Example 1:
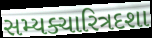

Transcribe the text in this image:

સમ્યક્ચારિત્રદશા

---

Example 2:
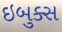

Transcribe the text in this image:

ઇબુક્સ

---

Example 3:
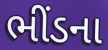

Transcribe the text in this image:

ભીંડના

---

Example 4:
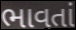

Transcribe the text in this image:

ભાવતાં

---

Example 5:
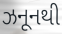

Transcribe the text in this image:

ઝનૂનથી